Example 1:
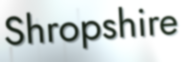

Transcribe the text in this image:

Shropshire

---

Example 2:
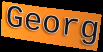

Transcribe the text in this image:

Georg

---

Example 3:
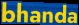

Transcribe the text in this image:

bhanda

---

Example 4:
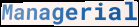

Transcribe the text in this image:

Managerial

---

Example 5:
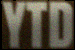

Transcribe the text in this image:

YTD